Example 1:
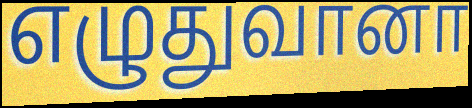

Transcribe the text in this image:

எழுதுவானா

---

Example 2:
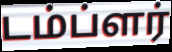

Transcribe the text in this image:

டம்ப்ளர்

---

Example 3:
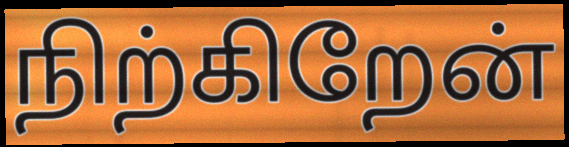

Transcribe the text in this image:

நிற்கிறேன்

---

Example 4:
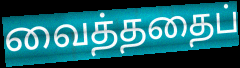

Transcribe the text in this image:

வைத்ததைப்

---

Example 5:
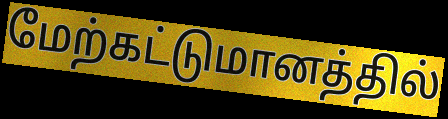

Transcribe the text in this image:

மேற்கட்டுமானத்தில்